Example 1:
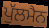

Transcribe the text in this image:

ਪੁੱਲਮੈਨ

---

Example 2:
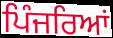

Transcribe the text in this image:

ਪਿੰਜਰਿਆਂ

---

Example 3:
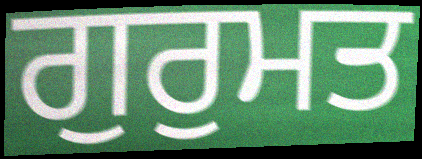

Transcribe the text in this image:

ਗੁਰੁਮਤ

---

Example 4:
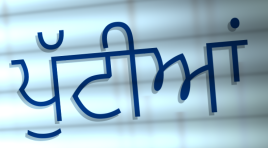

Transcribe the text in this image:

ਪੁੱਟੀਆਂ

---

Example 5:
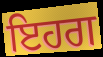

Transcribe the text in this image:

ਇਹਗ